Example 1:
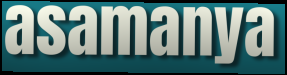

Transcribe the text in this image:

asamanya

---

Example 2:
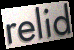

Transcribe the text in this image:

relid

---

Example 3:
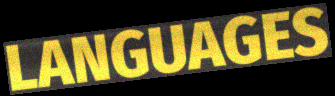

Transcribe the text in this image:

LANGUAGES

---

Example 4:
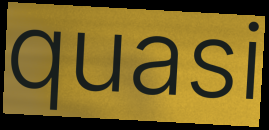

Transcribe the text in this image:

quasi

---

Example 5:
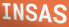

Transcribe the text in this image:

INSAS